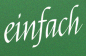
einfach